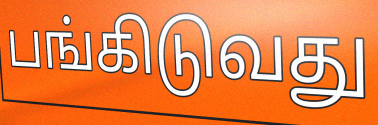
பங்கிடுவது